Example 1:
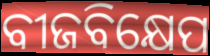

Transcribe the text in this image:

ବୀଜବିକ୍ଷେପ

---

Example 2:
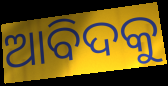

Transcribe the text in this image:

ଆବିଦକୁ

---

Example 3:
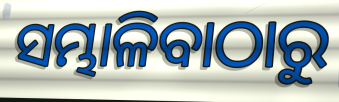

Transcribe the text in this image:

ସମ୍ଭାଳିବାଠାରୁ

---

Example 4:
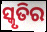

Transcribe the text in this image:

ସ୍କୃତିର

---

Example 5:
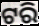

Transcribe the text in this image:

ଟରି